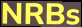
NRBs